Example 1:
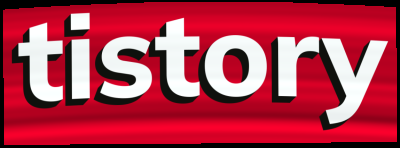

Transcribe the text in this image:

tistory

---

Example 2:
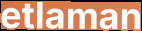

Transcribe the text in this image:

etlaman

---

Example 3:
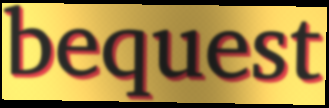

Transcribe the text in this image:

bequest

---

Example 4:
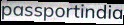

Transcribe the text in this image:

passportindia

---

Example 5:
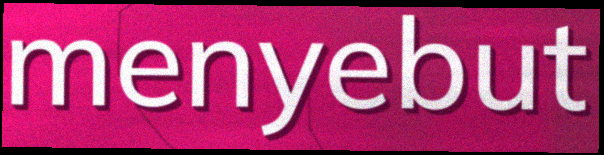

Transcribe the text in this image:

menyebut